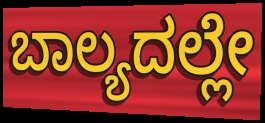
ಬಾಲ್ಯದಲ್ಲೇ